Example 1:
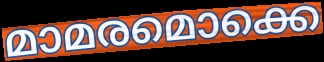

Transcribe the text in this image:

മാമരമൊക്കെ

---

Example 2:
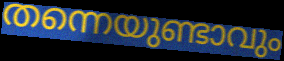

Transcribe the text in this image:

തന്നെയുണ്ടാവും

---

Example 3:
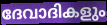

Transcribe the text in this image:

ദേവാദികളും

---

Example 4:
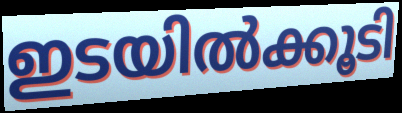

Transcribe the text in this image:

ഇടയിൽക്കൂടി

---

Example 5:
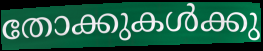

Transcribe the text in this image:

തോക്കുകൾക്കു